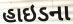
હાઇડના